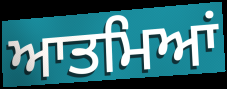
ਆਤਮਿਆਂ